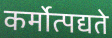
कर्मोत्पद्यते